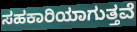
ಸಹಕಾರಿಯಾಗುತ್ತವೆ